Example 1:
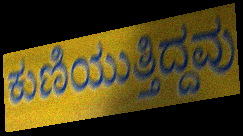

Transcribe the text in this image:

ಕುಣಿಯುತ್ತಿದ್ದವು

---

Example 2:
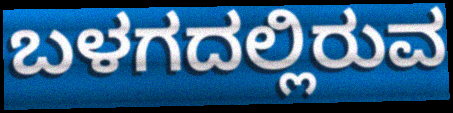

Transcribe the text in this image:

ಬಳಗದಲ್ಲಿರುವ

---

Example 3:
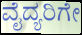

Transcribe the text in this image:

ವೈದ್ಯರಿಗೇ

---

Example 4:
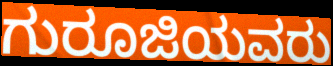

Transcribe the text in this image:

ಗುರೂಜಿಯವರು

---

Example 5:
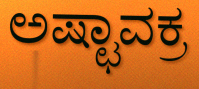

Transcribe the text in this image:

ಅಷ್ಟಾವಕ್ರ